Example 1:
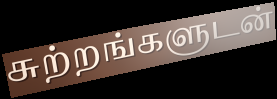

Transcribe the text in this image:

சுற்றங்களுடன்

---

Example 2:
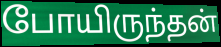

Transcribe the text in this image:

போயிருந்தன்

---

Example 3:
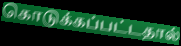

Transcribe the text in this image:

கொடுக்கப்பட்டதால்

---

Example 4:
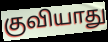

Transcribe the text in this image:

குவியாது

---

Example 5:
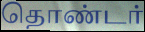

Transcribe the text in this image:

தொண்டர்